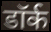
डॉर्क